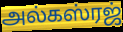
அல்கஸ்ரஜ்